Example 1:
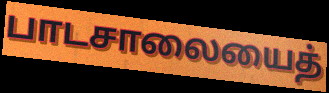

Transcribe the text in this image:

பாடசாலையைத்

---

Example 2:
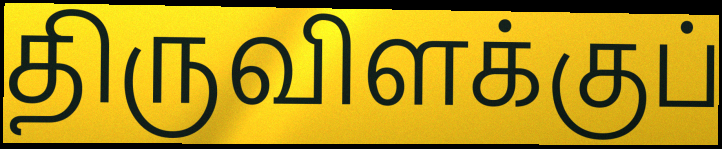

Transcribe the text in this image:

திருவிளக்குப்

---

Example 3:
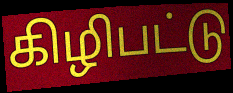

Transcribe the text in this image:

கிழிபட்டு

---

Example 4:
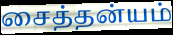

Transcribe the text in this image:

சைத்தன்யம்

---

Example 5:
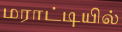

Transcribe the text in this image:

மராட்டியில்